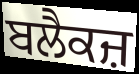
ਬਲੈਕਜ਼